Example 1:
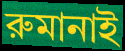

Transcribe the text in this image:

রুমানাই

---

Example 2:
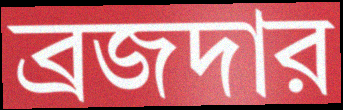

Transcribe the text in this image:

ব্রজদার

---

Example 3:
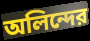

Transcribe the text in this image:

অলিন্দের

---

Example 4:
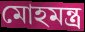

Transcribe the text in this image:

মোহমন্ত্র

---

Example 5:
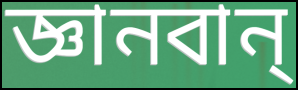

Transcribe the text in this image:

জ্ঞানবান্